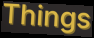
Things